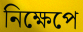
নিক্ষেপে